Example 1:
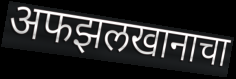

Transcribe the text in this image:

अफझलखानाचा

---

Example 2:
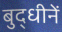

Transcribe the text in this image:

बुद्धीनें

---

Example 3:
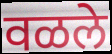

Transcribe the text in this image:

वळले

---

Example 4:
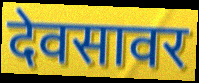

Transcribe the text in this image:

देवसावर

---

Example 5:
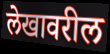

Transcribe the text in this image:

लेखावरील